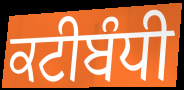
ਕਟੀਬੰਧੀ